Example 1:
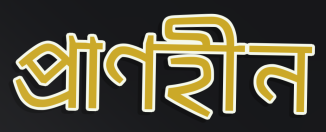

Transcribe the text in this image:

প্ৰাণহীন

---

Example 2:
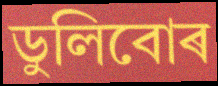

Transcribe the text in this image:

ডুলিবোৰ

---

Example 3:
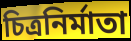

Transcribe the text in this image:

চিত্ৰনিৰ্মাতা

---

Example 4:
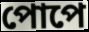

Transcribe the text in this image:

পোপে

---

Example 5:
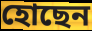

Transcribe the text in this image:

হোছেন